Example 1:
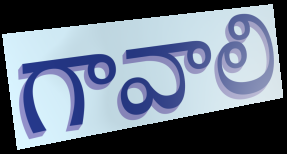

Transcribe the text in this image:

గావాలి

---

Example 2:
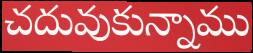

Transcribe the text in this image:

చదువుకున్నాము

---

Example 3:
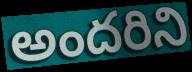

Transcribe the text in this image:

అందరిని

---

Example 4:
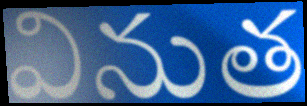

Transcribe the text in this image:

వినుత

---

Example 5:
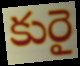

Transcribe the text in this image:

కురై